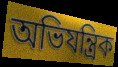
অভিযন্ত্ৰিক